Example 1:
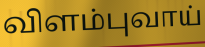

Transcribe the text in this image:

விளம்புவாய்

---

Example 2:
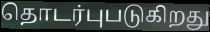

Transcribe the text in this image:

தொடர்புபடுகிறது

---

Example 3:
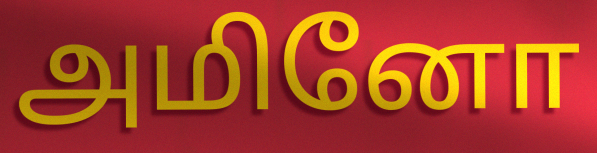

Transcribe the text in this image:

அமினோ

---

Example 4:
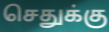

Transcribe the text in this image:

செதுக்கு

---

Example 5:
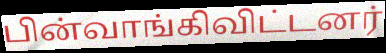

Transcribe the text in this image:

பின்வாங்கிவிட்டனர்